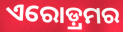
ଏରୋଡ଼୍ରମର